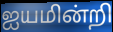
ஐயமின்றி